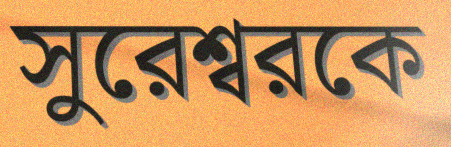
সুরেশ্বরকে